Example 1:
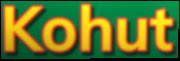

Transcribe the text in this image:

Kohut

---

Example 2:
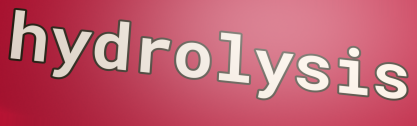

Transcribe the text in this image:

hydrolysis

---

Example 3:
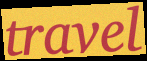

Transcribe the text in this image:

travel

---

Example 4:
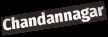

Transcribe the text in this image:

Chandannagar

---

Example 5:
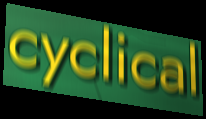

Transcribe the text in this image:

cyclical